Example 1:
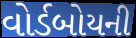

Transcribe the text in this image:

વોર્ડબોયની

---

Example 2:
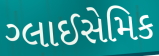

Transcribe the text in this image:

ગ્લાઈસેમિક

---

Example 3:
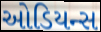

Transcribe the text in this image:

ઓડિયન્સ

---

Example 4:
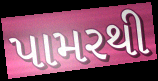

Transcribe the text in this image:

પામરથી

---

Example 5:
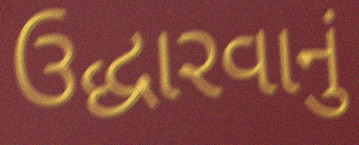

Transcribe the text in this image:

ઉદ્ધારવાનું